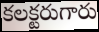
కలక్టరుగారు